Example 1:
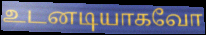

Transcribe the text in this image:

உடனடியாகவோ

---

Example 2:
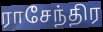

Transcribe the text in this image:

ராசேந்திர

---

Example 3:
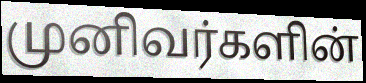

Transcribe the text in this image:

முனிவர்களின்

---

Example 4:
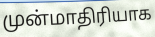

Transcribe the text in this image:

முன்மாதிரியாக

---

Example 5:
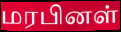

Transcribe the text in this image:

மரபினள்